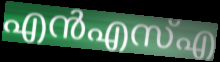
എൻഎസ്എ